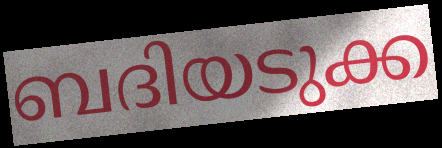
ബദിയടുക്ക